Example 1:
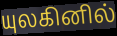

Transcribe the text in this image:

யுலகினில்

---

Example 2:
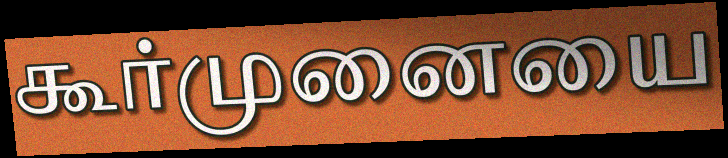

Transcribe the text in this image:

கூர்முனையை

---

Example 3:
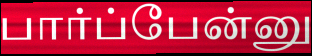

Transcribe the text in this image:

பார்ப்பேன்னு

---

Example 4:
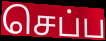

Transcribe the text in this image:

செப்ப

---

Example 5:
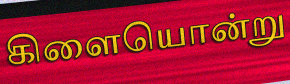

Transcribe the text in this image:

கிளையொன்று